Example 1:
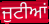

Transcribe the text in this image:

ਜੁਟੀਆਂ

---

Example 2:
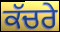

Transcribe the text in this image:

ਕੱਚਰੇ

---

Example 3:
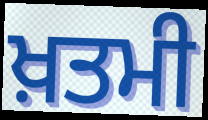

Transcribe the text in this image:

ਖ਼ਤਮੀ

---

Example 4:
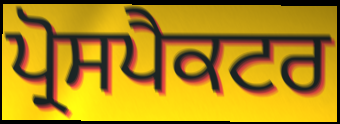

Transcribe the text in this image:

ਪ੍ਰੋਸਪੈਕਟਰ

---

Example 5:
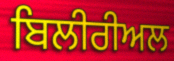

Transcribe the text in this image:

ਬਿਲੀਰੀਅਲ